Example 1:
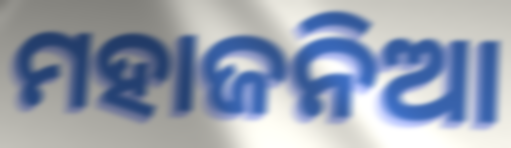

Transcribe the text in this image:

ମହାଜନିଆ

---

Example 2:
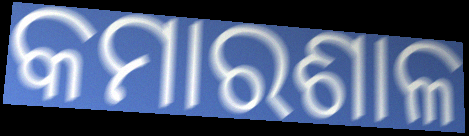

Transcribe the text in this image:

କମାରଶାଳ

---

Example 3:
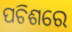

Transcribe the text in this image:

ପଚିଶରେ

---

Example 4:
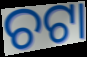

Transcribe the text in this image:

ଚଟା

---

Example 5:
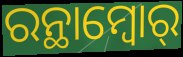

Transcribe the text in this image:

ରନ୍ଥାମ୍ବୋର୍